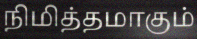
நிமித்தமாகும்